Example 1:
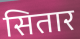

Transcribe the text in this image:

सितार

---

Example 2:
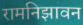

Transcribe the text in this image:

रामनिझावन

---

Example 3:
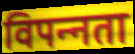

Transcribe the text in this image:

विपन्नता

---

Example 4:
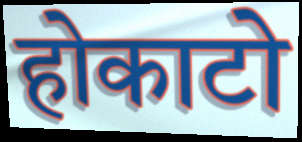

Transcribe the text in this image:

होकाटो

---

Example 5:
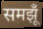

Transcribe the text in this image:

समझूँ